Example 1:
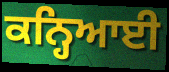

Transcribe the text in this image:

ਕਨ੍ਹਿਆਈ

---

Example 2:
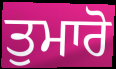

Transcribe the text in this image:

ਤੁਮਾਰੋ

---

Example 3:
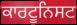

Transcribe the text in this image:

ਕਾਰਟੂਨਿਸਟ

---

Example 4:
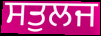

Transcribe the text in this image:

ਸਤੁਲਜ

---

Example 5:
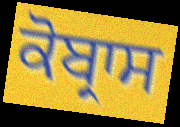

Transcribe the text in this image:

ਕੋਬ੍ਰਾਸ